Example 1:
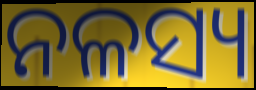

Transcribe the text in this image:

ନଳସ୍ୟ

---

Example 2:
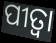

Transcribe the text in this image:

ପୀତ୍ବା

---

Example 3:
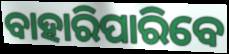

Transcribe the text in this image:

ବାହାରିପାରିବେ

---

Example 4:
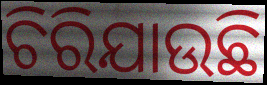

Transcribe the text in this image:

ଚିରିଯାଉଛି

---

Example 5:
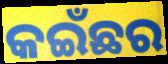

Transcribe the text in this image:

କଇଁଛର